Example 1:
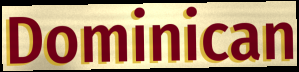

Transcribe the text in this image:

Dominican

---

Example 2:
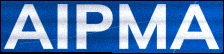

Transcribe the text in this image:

AIPMA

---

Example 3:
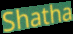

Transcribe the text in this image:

Shatha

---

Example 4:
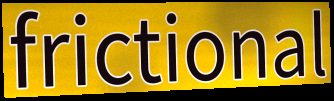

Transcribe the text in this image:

frictional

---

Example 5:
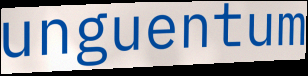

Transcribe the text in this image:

unguentum